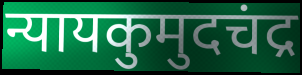
न्यायकुमुदचंद्र